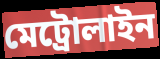
মেট্রোলাইন